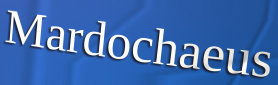
Mardochaeus